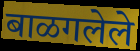
बाळगलेले